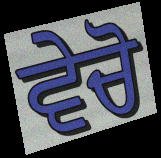
ਵੇਚੋ